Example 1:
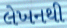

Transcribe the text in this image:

લેખનથી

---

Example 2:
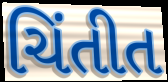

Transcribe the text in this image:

ચિંતીત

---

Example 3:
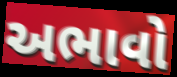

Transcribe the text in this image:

અભાવો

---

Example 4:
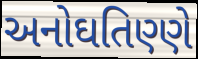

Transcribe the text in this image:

અનોઘતિણ્ણે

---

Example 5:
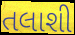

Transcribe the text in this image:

તલાશી